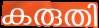
കരുതി